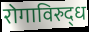
रोगाविरुद्ध